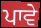
ਪਾਵੇ